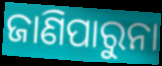
ଜାଣିପାରୁନା